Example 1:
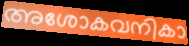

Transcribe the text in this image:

അശോകവനികാ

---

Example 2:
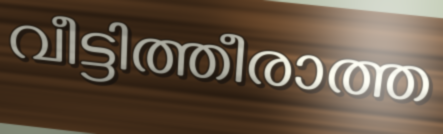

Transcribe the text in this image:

വീട്ടിത്തീരാത്ത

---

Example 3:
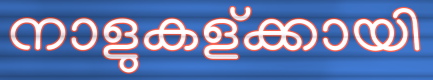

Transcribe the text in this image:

നാളുകള്ക്കായി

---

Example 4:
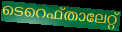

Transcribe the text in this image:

ടെറെഫ്താലേറ്റ്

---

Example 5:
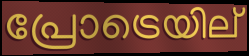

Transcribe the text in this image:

പ്രോട്രെയില്